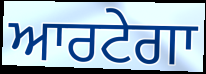
ਆਰਟੇਗਾ